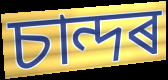
চান্দৰ